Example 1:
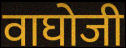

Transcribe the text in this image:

वाघोजी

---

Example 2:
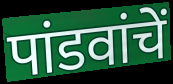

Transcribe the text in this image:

पांडवांचें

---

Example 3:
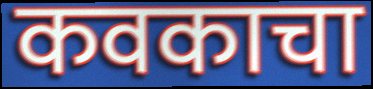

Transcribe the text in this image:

कवकाचा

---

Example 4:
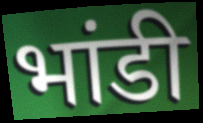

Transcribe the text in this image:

भांडी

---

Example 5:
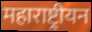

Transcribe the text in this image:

महाराष्ट्रीयन